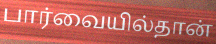
பார்வையில்தான்